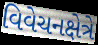
વિવેચનક્ષેત્રે